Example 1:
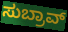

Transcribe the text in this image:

ಸುಬ್ರಾವ್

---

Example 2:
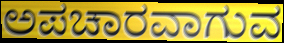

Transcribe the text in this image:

ಅಪಚಾರವಾಗುವ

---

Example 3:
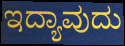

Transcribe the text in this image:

ಇದ್ಯಾವುದು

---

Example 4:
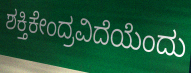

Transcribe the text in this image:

ಶಕ್ತಿಕೇಂದ್ರವಿದೆಯೆಂದು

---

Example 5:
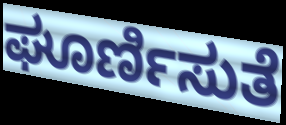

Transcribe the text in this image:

ಘೂರ್ಣಿಸುತೆ